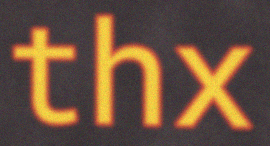
thx